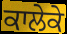
ਕਾਲੇਕੇ